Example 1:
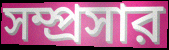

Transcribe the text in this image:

সম্প্রসার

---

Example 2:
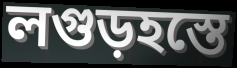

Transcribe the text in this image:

লগুড়হস্তে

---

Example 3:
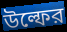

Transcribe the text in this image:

উল্ফের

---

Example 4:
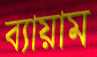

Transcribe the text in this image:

ব্যায়াম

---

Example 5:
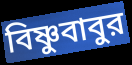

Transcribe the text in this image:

বিষ্ণুবাবুর